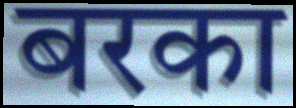
बरका